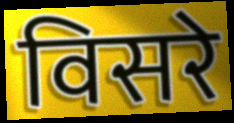
विसरे